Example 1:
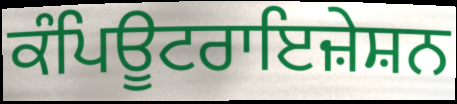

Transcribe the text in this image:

ਕੰਪਿਊਟਰਾਇਜ਼ੇਸ਼ਨ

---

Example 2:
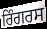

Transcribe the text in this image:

ਰਿੰਗਰਸ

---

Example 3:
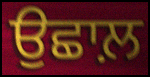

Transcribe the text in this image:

ਉਛਾਲ਼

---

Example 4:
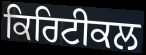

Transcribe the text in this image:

ਕਿਰਿਟੀਕਲ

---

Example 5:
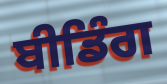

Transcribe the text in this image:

ਬੀਡਿੰਗ